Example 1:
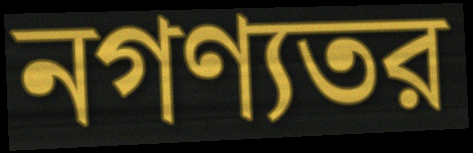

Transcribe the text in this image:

নগণ্যতর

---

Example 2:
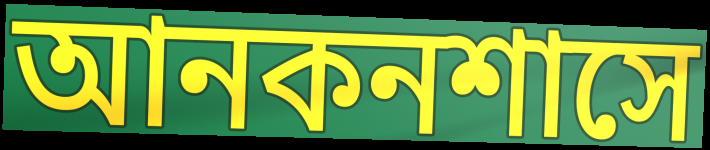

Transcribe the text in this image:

আনকনশাসে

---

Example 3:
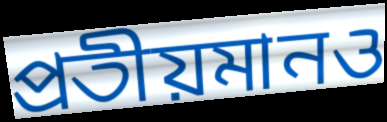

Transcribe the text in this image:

প্রতীয়মানও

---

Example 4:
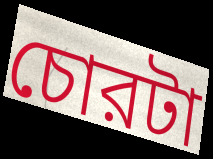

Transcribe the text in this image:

চোরটা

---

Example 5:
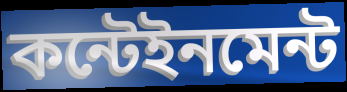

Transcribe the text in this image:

কন্টেইনমেন্ট